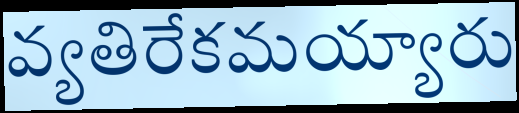
వ్యతిరేకమయ్యారు